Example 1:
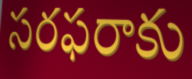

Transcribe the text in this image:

సరఫరాకు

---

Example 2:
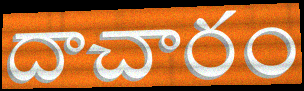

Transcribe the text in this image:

దాచారం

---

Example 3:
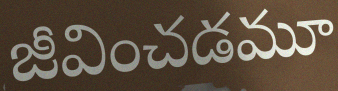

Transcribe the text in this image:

జీవించడమూ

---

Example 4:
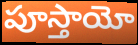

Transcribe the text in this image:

పూస్తాయో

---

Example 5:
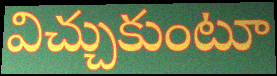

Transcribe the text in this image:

విచ్చుకుంటూ